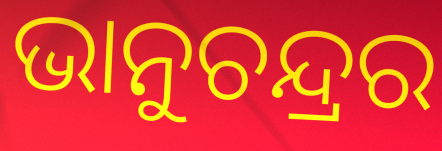
ଭାନୁଚନ୍ଦ୍ରର